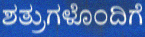
ಶತ್ರುಗಳೊಂದಿಗೆ